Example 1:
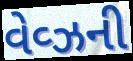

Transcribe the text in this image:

વેવ્ઝની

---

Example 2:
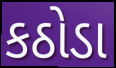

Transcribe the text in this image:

કઠોડા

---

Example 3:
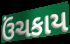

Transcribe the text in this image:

ઉંચકાય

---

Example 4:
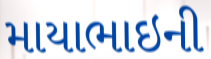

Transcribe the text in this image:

માયાભાઇની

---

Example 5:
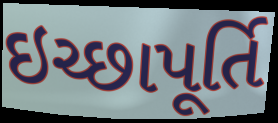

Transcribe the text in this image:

ઇચ્છાપૂર્તિ